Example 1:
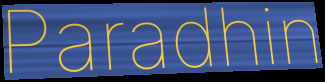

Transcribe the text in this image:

Paradhin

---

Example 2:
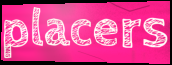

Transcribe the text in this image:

placers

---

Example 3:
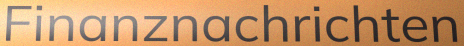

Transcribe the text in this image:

Finanznachrichten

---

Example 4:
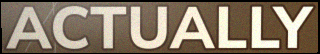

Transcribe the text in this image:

ACTUALLY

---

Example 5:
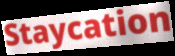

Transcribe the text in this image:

Staycation